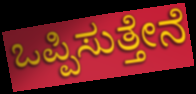
ಒಪ್ಪಿಸುತ್ತೇನೆ